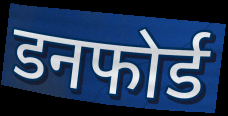
डनफोर्ड